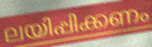
ലയിപ്പിക്കണം